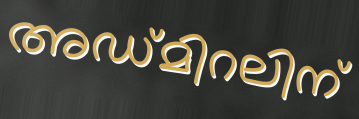
അഡ്മിറലിന്